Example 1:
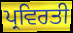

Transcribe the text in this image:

ਪ੍ਰਵਿਰਤੀ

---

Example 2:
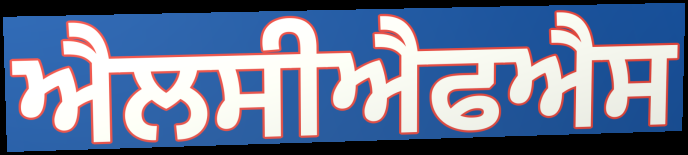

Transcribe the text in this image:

ਐਲਸੀਐਫਐਸ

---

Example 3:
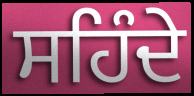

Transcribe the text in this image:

ਸਹਿੰਦੇ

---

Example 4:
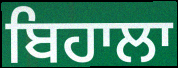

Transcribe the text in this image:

ਬਿਹਾਲਾ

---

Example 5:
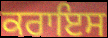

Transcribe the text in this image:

ਕਰਾਇਸ